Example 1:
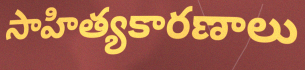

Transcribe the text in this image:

సాహిత్యకారణాలు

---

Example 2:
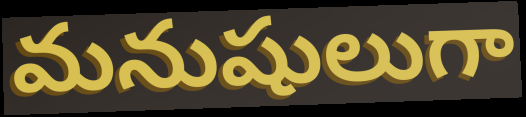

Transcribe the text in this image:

మనుషులుగా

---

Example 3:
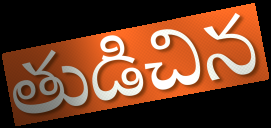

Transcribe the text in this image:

తుడిచిన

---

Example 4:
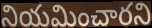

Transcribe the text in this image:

నియమించారని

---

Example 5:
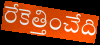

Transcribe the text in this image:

రేకెత్తించేది